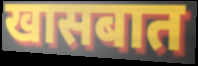
खासबात